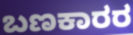
ಬಣಕಾರರ